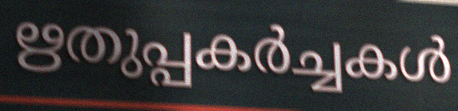
ഋതുപ്പകർച്ചകൾ